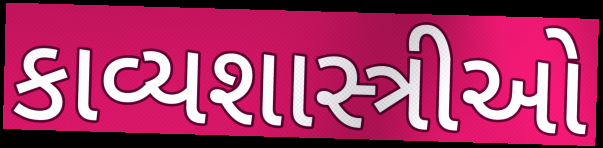
કાવ્યશાસ્ત્રીઓ